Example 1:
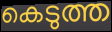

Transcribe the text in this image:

കെടുത്ത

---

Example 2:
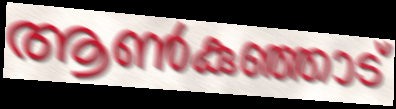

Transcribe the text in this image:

ആൺകുഞ്ഞാട്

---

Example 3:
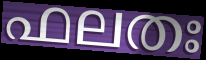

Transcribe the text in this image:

ഫലതഃ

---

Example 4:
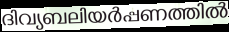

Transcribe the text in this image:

ദിവ്യബലിയർപ്പണത്തിൽ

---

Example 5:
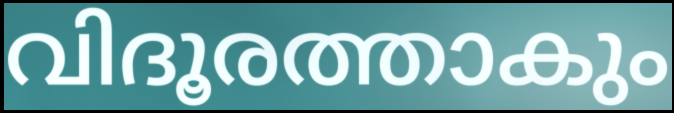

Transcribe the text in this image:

വിദൂരത്താകും